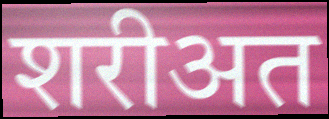
शरीअत